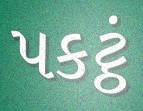
પકટ્ઠં